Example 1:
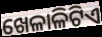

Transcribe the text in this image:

ଖେଳାଳିଟିଏ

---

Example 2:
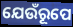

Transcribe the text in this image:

ଯେଉଁରୂପେ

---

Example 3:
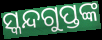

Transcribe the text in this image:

ସ୍କନ୍ଦଗୁପ୍ତଙ୍କ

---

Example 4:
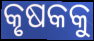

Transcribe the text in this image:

କୃଷକକୁ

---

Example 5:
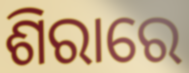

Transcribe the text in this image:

ଶିରାରେ